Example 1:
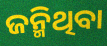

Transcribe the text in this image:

ଜନ୍ମିଥିବା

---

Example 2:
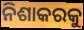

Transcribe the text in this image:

ନିଶାକରକୁ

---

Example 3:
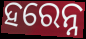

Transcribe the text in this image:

ହରେନ୍ନ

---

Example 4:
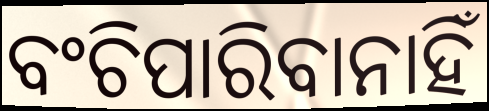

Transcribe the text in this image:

ବଂଚିପାରିବାନାହିଁ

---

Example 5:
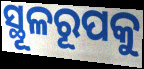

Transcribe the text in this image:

ସ୍ଥୂଳରୂପକୁ